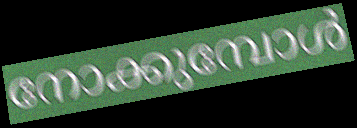
നോക്കുമ്പോൾ